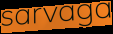
sarvaga